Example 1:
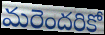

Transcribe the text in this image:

మరెందరికో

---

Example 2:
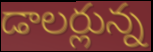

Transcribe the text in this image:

డాలర్లున్న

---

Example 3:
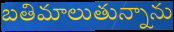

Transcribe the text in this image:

బతిమాలుతున్నాను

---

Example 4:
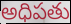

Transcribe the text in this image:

అధిపతు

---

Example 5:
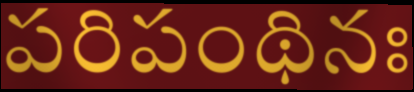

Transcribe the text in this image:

పరిపంథినః